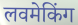
लवमेकिंग